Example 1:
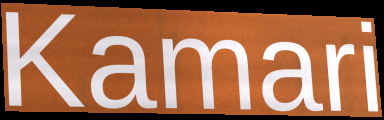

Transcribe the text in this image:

Kamari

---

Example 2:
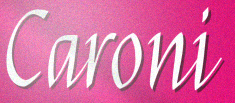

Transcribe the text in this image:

Caroni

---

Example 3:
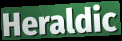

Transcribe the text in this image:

Heraldic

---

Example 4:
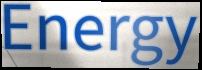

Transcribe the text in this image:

Energy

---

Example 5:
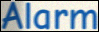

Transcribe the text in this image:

Alarm